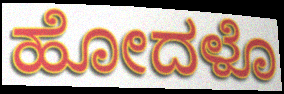
ಹೋದಳೊ